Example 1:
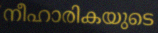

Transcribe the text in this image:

നീഹാരികയുടെ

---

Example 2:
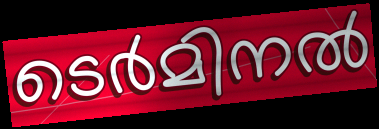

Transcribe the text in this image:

ടെർമിനൽ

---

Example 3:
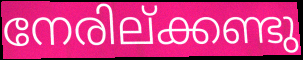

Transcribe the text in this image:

നേരില്ക്കണ്ടു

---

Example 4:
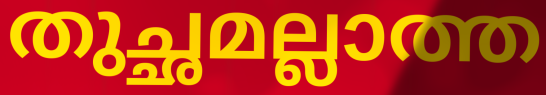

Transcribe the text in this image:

തുച്ഛമല്ലാത്ത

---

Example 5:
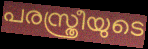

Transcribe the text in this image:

പരസ്ത്രീയുടെ